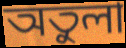
অতুলা